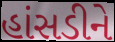
હાંસડીને